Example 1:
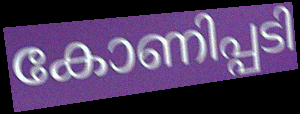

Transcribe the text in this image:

കോണിപ്പടി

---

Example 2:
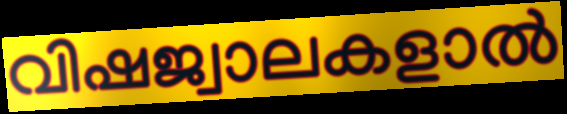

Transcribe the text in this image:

വിഷജ്വാലകളാൽ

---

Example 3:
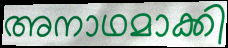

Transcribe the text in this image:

അനാഥമാക്കി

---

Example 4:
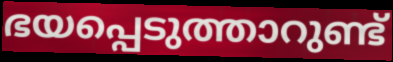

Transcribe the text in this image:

ഭയപ്പെടുത്താറുണ്ട്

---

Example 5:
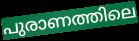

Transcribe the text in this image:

പുരാണത്തിലെ